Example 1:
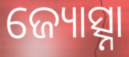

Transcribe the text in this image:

ଜ୍ୟୋତ୍ସ୍ନା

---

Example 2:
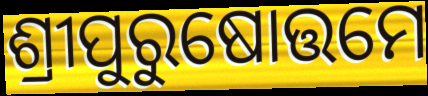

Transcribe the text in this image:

ଶ୍ରୀପୁରୁଷୋତ୍ତମେ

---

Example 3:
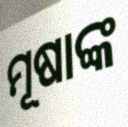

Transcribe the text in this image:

ମୂଷାଙ୍କ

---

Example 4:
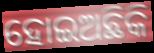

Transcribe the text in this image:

ହୋଇଅଛିକି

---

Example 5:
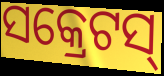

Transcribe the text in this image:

ସକ୍ରେଟସ୍